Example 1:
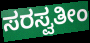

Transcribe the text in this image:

ಸರಸ್ವತೀಂ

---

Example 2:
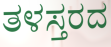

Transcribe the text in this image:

ತಳಸ್ತರದ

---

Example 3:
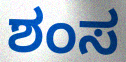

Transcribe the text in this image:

ಶಂಸ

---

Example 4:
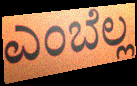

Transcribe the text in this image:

ಎಂಬೆಲ್ಲ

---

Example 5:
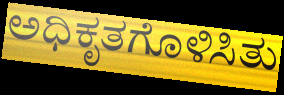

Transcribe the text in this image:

ಅಧಿಕೃತಗೊಳಿಸಿತು